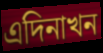
এদিনাখন